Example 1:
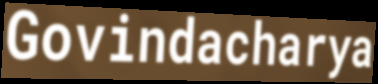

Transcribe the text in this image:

Govindacharya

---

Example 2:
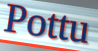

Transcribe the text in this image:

Pottu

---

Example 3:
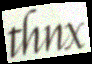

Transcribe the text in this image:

thnx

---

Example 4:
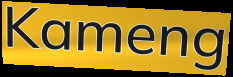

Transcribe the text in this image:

Kameng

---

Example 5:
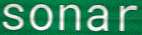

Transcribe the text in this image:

sonar